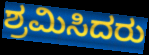
ಶ್ರಮಿಸಿದರು